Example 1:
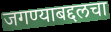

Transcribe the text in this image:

जगण्याबद्दलचा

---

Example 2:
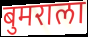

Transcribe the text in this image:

बुमराला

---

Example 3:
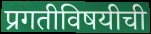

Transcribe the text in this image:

प्रगतीविषयीची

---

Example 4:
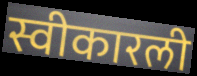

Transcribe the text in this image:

स्वीकारली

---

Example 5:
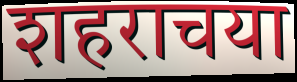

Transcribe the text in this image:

शहराचया